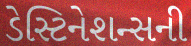
ડેસ્ટિનેશન્સની